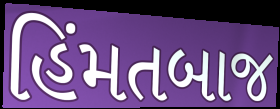
હિંમતબાજ